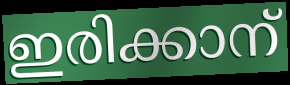
ഇരിക്കാന്